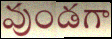
వుండగా